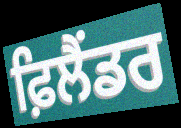
ਫ਼ਿਲੈਂਡਰ